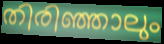
തിരിഞ്ഞാലും